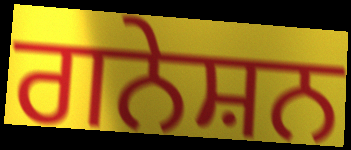
ਗਨੇਸ਼ਨ